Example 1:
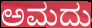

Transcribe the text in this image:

ಅಮದು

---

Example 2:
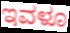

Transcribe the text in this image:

ಇವಳೂ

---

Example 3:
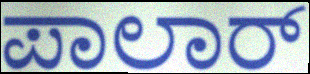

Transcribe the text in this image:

ಪಾಲಾರ್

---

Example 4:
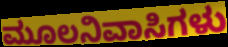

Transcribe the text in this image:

ಮೂಲನಿವಾಸಿಗಳು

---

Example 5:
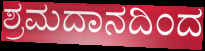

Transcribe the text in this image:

ಶ್ರಮದಾನದಿಂದ